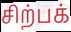
சிற்பக்